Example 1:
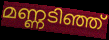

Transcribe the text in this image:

മണ്ണടിഞ്ഞ്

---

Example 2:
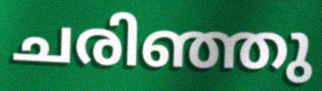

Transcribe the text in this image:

ചരിഞ്ഞു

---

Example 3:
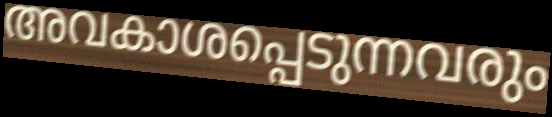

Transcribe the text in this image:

അവകാശപ്പെടുന്നവരും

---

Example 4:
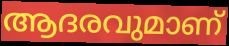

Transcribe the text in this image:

ആദരവുമാണ്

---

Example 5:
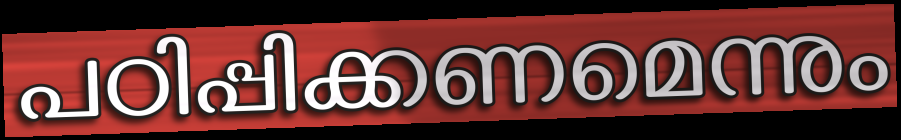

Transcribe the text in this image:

പഠിപ്പിക്കണമെന്നും